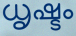
ധൃഷ്ടം